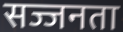
सज्जनता